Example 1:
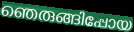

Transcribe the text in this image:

ഞെരുങ്ങിപ്പോയ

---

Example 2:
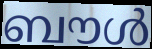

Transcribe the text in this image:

ബൗൾ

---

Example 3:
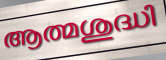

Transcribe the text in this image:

ആത്മശുദ്ധി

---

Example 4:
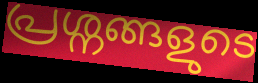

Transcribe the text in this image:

പ്രശ്നങ്ങളുടെ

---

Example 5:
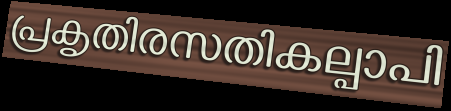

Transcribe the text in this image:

പ്രകൃതിരസതികല്പാപി